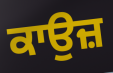
ਕਾਉਜ਼